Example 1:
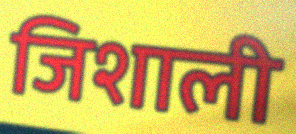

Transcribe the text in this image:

जिशाली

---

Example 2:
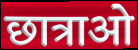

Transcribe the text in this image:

छात्राओ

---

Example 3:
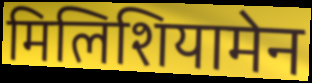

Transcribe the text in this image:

मिलिशियामेन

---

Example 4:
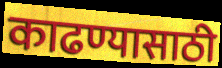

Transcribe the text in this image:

काढण्यासाठी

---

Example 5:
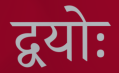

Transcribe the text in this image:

द्वयोः